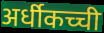
अर्धीकच्ची